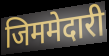
जिममेदारी